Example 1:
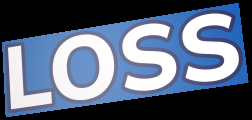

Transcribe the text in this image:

LOSS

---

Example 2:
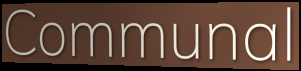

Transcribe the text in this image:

Communal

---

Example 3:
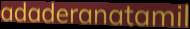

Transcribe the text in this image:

adaderanatamil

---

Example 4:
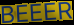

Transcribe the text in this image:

BEEER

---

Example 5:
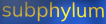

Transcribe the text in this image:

subphylum